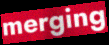
merging